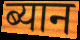
ब्यान